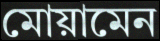
মোয়ামেন